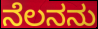
ನೆಲನನು